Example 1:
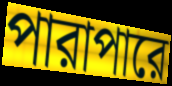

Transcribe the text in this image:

পারাপারে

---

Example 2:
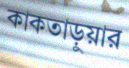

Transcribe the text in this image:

কাকতাড়ুয়ার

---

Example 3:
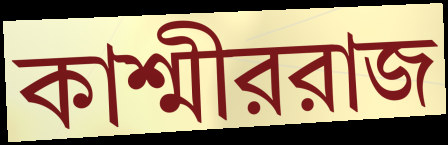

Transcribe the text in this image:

কাশ্মীররাজ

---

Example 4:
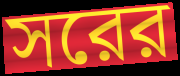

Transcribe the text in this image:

সরের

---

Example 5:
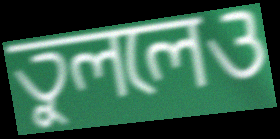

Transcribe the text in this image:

তুললেও